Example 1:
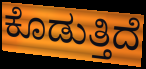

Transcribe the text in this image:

ಕೊಡುತ್ತಿದೆ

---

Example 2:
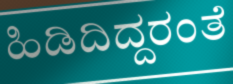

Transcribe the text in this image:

ಹಿಡಿದಿದ್ದರಂತೆ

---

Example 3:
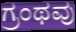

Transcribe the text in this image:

ಗ್ರಂಥವು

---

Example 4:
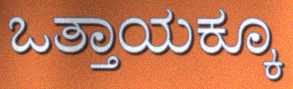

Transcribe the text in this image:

ಒತ್ತಾಯಕ್ಕೂ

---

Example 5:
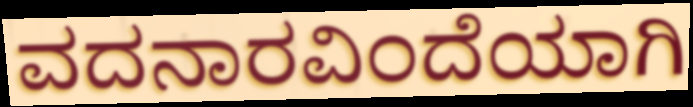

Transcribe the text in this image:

ವದನಾರವಿಂದೆಯಾಗಿ